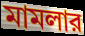
মামলার